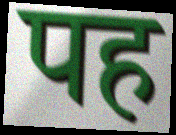
पह